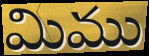
మిము